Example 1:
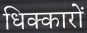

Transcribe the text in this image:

धिक्कारों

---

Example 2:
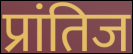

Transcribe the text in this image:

प्रांतिज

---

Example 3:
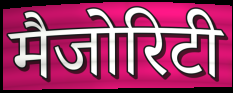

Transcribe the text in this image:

मैजोरिटी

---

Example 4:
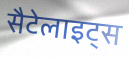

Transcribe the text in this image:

सैटेलाइट्स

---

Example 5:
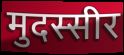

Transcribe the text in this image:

मुदस्सीर